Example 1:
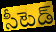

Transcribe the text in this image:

సీటెడ్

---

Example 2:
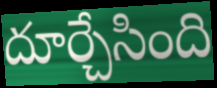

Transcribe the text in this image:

దూర్చేసింది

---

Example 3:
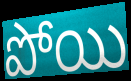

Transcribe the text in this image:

పోయి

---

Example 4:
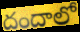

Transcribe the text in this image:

దందాలో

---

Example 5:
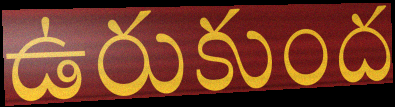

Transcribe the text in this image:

ఉరుకుంద